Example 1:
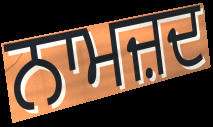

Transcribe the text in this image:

ਨਾਮਜ਼ਦ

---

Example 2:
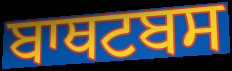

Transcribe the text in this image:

ਬਾਥਟਬਸ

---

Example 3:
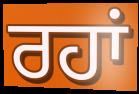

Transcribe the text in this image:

ਰਹਾਂ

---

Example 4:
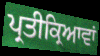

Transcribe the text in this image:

ਪ੍ਰਤੀਕ੍ਰਿਆਵਾਂ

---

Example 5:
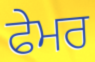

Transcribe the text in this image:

ਫੇਮਰ